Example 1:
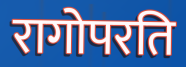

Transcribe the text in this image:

रागोपरति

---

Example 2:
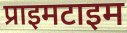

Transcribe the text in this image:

प्राइमटाइम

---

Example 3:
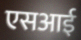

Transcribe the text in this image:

एसआई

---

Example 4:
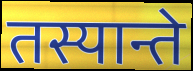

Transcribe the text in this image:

तस्यान्ते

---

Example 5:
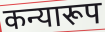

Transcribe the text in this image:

कन्यारूप